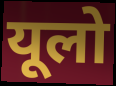
यूलो